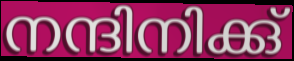
നന്ദിനിക്കു്